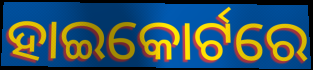
ହାଇକୋର୍ଟରେ